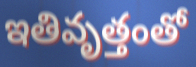
ఇతివృత్తంతో